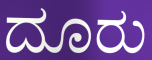
ದೂರು